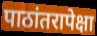
पाठांतरापेक्षा